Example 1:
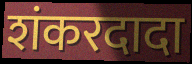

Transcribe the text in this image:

शंकरदादा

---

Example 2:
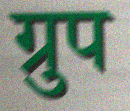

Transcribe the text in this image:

ग्रुप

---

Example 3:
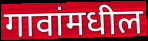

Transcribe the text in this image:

गावांमधील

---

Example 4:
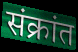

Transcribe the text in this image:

संक्रांत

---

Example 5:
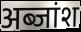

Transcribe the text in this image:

अब्जांश